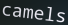
camels